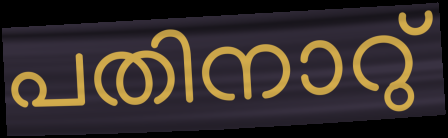
പതിനാറു്